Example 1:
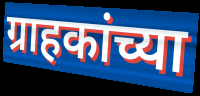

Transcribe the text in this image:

ग्राहकांच्या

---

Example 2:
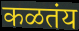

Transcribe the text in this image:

कळतंय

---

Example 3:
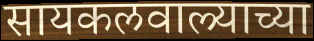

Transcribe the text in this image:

सायकलवाल्याच्या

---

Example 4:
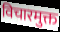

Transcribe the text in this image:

विचारमुक्त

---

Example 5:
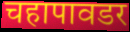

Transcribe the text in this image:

चहापावडर